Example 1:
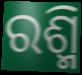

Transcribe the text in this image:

ରଶ୍ମି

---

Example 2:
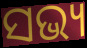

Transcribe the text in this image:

ସଭ୍ୟ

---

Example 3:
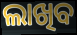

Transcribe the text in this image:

ଲାଖିବ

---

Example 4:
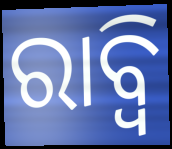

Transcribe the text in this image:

ରାବ୍ବି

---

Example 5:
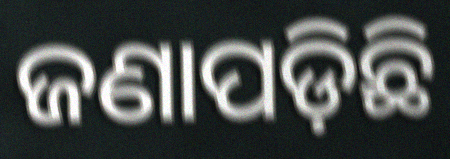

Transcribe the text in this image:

ଜଣାପଡ଼ିଛି